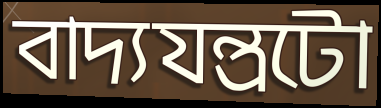
বাদ্যযন্ত্ৰটো